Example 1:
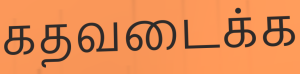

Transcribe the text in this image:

கதவடைக்க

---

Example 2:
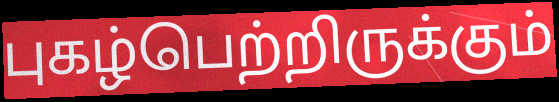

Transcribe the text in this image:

புகழ்பெற்றிருக்கும்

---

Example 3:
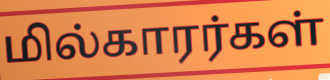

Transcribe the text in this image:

மில்காரர்கள்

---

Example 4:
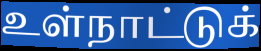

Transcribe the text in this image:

உள்நாட்டுக்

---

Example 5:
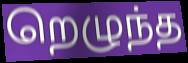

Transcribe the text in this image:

றெழுந்த